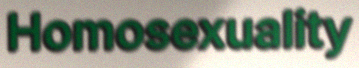
Homosexuality